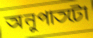
অনুপাতটো